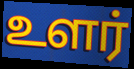
உளர்